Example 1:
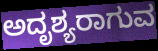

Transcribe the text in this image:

ಅದೃಶ್ಯರಾಗುವ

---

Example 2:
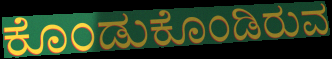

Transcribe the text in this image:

ಕೊಂಡುಕೊಂಡಿರುವ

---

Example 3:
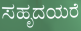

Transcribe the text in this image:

ಸಹೃದಯರೆ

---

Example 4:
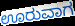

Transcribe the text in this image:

ಊರುವಾಗ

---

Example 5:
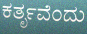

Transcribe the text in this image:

ಕರ್ತೃವೆಂದು